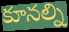
కూనల్ని